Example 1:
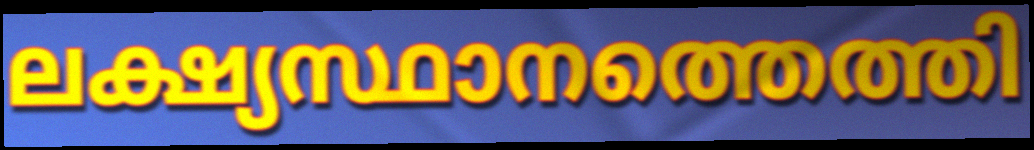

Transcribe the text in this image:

ലക്ഷ്യസ്ഥാനത്തെത്തി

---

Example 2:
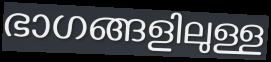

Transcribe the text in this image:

ഭാഗങ്ങളിലുള്ള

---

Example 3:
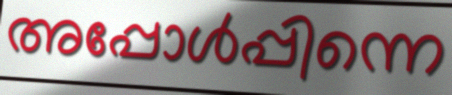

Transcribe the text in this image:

അപ്പോൾപ്പിന്നെ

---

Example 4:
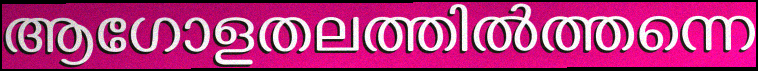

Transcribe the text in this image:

ആഗോളതലത്തിൽത്തന്നെ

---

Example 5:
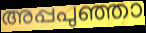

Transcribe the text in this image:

അപ്പപുഞ്ഞാ